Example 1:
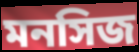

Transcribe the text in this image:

মনসিজ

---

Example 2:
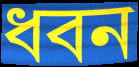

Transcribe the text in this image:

ধবন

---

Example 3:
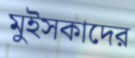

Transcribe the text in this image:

মুইসকাদের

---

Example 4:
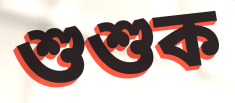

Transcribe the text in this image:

শুশুক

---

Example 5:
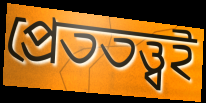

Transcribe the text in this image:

প্রেততত্ত্বই